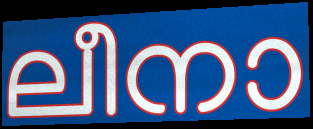
ലീനാ